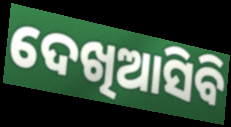
ଦେଖିଆସିବି